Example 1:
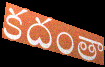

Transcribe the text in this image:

కదంతా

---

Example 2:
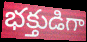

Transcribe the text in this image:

భక్తుడిగా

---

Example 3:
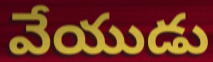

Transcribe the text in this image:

వేయుడు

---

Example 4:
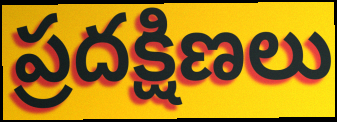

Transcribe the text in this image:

ప్రదక్షిణలు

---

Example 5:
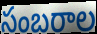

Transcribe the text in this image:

సంబరాల